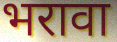
भरावा